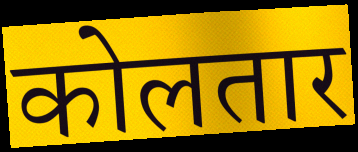
कोलतार